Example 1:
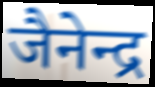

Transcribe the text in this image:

जैनेन्‍द्र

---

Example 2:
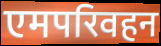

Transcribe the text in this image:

एमपरिवहन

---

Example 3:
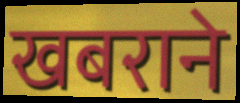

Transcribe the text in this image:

खबराने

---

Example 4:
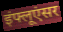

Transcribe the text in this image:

इंफ्लूएंसर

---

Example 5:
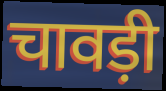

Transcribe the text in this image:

चावड़ी